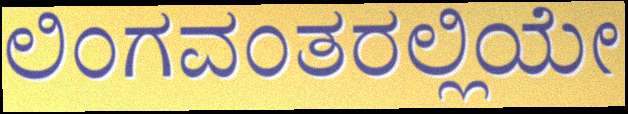
ಲಿಂಗವಂತರಲ್ಲಿಯೇ